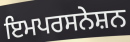
ਇਮਪਰਸਨੇਸ਼ਨ